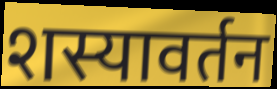
शस्यावर्तन